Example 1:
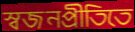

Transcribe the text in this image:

স্বজনপ্রীতিতে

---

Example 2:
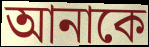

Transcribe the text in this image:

আনাকে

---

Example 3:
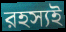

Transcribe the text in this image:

রহস্যই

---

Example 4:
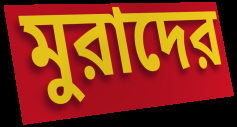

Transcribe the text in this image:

মুরাদের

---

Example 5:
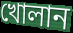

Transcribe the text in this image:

খোলান